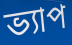
ভ্যাপ